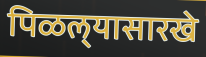
पिळल्यासारखे